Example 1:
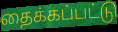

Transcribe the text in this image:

தைக்கப்பட்டு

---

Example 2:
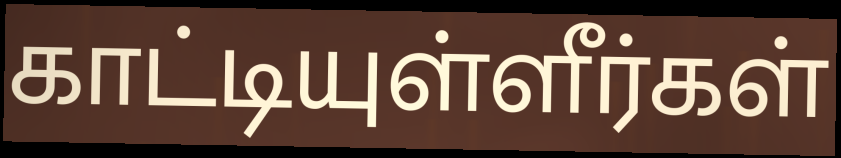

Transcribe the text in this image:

காட்டியுள்ளீர்கள்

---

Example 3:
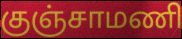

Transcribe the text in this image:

குஞ்சாமணி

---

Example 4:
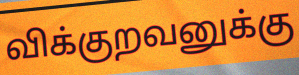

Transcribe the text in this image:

விக்குறவனுக்கு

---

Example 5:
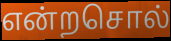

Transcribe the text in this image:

என்றசொல்